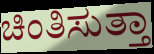
ಚಿಂತಿಸುತ್ತಾ